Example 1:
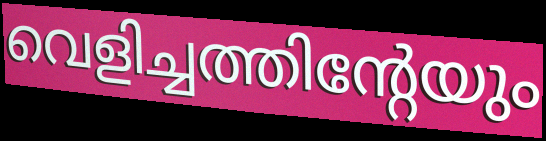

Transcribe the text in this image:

വെളിച്ചത്തിന്റേയും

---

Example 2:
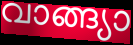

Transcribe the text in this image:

വാങ്ങ്യാ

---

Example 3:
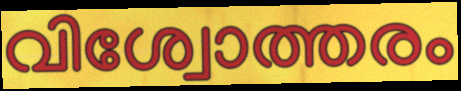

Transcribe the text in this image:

വിശ്വോത്തരം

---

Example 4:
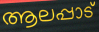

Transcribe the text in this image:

ആലപ്പാട്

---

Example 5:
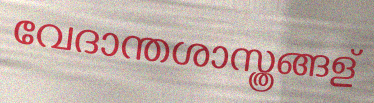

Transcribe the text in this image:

വേദാന്തശാസ്ത്രങ്ങള്